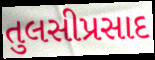
તુલસીપ્રસાદ